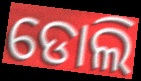
ଡୋଲି